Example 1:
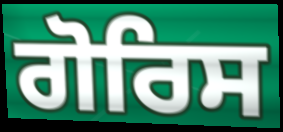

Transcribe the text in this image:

ਗੋਰਿਸ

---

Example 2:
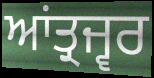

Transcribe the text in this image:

ਆਂਤ੍ਰਜ੍ਵਰ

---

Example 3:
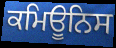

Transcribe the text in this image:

ਕਮਿਊਨਿਸ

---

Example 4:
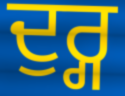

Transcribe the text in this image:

ਦੁਰ੍ਗ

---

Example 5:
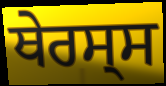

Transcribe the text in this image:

ਥੇਰਸ੍ਸ